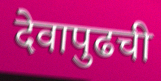
देवापुढची